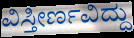
ವಿಸ್ತೀರ್ಣವಿದ್ದು